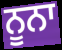
ਨੂਨਾ